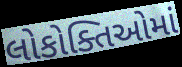
લોકોક્તિઓમાં